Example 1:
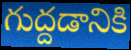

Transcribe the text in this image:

గుద్దడానికి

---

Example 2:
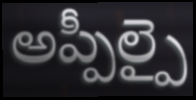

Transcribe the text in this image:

అప్పీల్పై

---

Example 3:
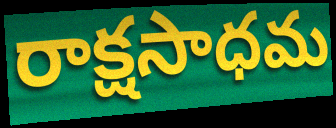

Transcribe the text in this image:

రాక్షసాధమ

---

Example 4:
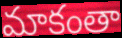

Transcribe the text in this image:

మాకంతా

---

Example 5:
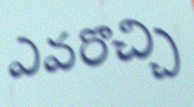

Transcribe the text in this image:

ఎవరొచ్చి